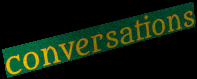
conversations